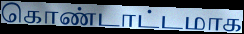
கொண்டாட்டமாக